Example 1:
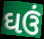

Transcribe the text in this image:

ઘઉં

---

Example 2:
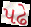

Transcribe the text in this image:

પઢે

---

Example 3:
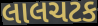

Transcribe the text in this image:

લાલચટક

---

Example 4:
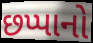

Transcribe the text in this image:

છપ્પાનો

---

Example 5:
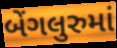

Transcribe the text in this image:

બેંગલુરુમાં